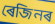
ৰেজিনৰ